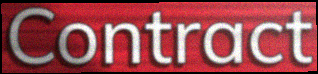
Contract